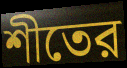
শীতের